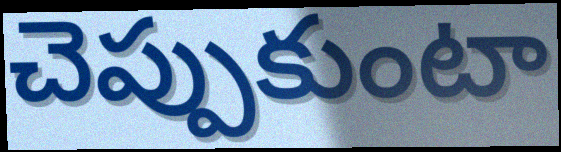
చెప్పుకుంటా